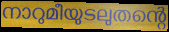
നാറുമീയുടലുതന്റെ